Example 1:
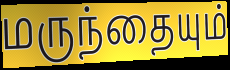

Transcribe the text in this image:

மருந்தையும்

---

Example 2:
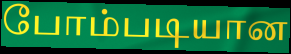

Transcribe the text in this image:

போம்படியான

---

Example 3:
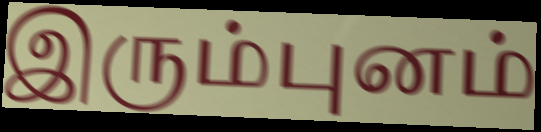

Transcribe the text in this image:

இரும்புனம்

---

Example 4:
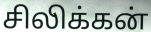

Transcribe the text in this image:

சிலிக்கன்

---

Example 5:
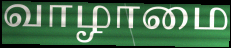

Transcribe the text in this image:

வாழாமை